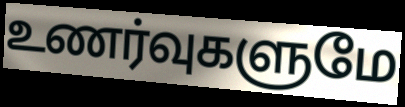
உணர்வுகளுமே